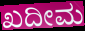
ಖದೀಮ